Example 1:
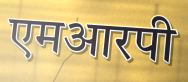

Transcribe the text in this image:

एमआरपी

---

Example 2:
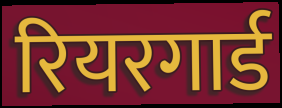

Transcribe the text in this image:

रियरगार्ड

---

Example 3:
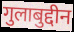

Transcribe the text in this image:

गुलाबुद्दीन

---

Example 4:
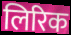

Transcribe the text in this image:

लिरिक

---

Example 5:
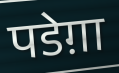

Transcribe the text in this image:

पडेग़ा